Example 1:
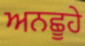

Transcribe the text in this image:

ਅਨਛੂਹੇ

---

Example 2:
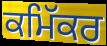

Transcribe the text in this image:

ਕਮਿੱਕਰ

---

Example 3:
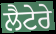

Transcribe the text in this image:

ਲੈਟੇਰੇ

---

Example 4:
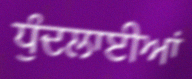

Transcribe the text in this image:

ਧੁੰਦਲਾਈਆਂ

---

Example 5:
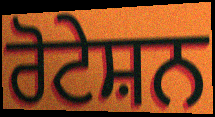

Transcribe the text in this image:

ਰੋਟੇਸ਼ਨ